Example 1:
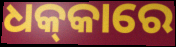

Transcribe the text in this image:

ଧକ୍‍କାରେ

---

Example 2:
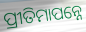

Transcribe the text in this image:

ପ୍ରୀତିମାପନ୍ନେ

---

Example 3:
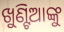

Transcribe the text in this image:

ଖୁଣ୍ଟିଆଙ୍କୁ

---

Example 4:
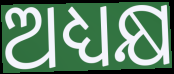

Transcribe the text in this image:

ଅଧ୍ୟକ୍ଷ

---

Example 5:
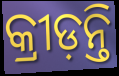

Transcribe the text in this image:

କ୍ରୀଡ଼ନ୍ତି